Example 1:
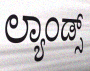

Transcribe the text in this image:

ಲ್ಯಾಂಡ್ಸ್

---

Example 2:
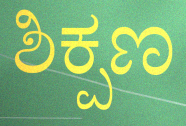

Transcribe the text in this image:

ಶಿಕ್ಪಣ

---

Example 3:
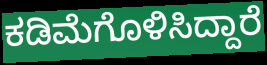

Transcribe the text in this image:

ಕಡಿಮೆಗೊಳಿಸಿದ್ದಾರೆ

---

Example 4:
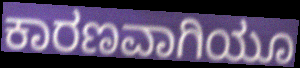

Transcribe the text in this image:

ಕಾರಣವಾಗಿಯೂ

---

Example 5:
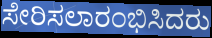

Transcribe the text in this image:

ಸೇರಿಸಲಾರಂಭಿಸಿದರು